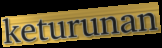
keturunan